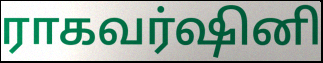
ராகவர்ஷினி